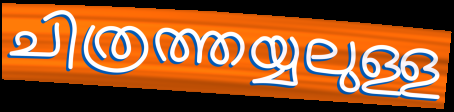
ചിത്രത്തയ്യലുള്ള